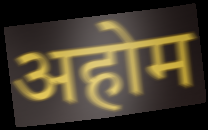
अहोम